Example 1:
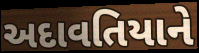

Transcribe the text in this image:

અદાવતિયાને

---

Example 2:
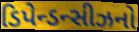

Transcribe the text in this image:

ડિપેન્ડન્સીઝનો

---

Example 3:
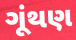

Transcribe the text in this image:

ગૂંથણ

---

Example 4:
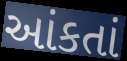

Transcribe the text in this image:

આંકતાં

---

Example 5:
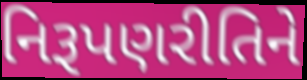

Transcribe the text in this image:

નિરૂપણરીતિને